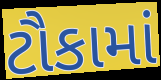
ટૌકામાં